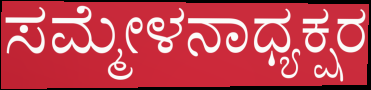
ಸಮ್ಮೇಳನಾಧ್ಯಕ್ಷರ